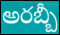
అరబ్బీ